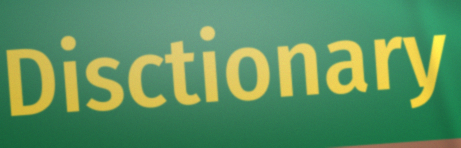
Disctionary